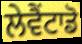
ਲੇਵੈਂਟਾਡੋ